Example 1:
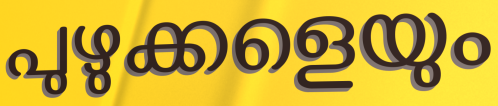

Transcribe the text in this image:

പുഴുക്കളെയും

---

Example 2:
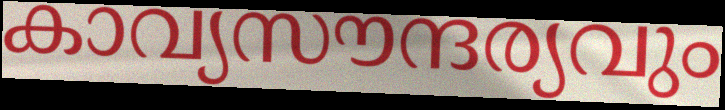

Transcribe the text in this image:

കാവ്യസൗന്ദര്യവും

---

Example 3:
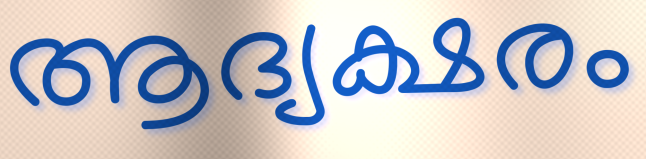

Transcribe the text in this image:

ആദ്യക്ഷരം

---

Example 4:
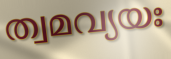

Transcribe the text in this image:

ത്വമവ്യയഃ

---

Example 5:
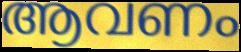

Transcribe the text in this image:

ആവണം